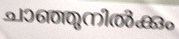
ചാഞ്ഞുനിൽക്കും